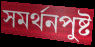
সমর্থনপুষ্ট